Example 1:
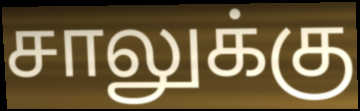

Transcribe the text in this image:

சாலுக்கு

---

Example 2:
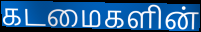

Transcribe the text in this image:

கடமைகளின்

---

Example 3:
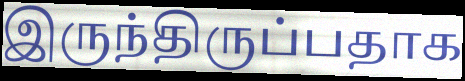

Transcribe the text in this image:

இருந்திருப்பதாக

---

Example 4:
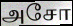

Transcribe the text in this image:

அசோ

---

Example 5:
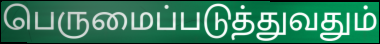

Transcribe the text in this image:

பெருமைப்படுத்துவதும்